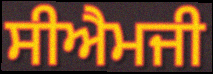
ਸੀਐਮਜੀ